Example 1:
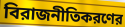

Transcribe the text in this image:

বিরাজনীতিকরণের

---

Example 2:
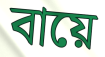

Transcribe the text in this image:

বায়ে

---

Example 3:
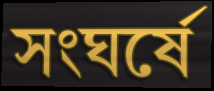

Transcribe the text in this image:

সংঘর্ষে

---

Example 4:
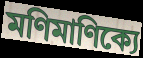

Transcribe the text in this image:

মণিমাণিক্যে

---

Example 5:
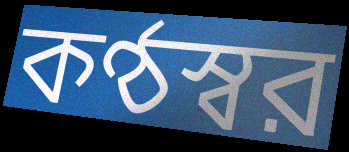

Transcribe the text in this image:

কণ্ঠস্বর